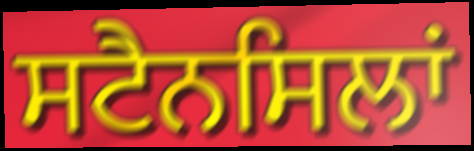
ਸਟੈਨਸਿਲਾਂ